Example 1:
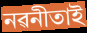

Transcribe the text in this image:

নৱনীতাই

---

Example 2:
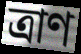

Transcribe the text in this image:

ত্ৰাণ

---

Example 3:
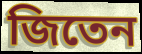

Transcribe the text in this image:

জিতেন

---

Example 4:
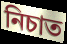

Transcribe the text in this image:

নিচাত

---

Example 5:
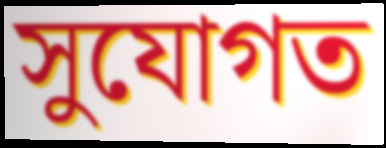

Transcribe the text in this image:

সুযোগত